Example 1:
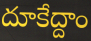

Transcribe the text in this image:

దూకేద్దాం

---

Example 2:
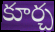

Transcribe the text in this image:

కూర్చ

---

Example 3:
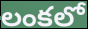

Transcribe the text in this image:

లంకలో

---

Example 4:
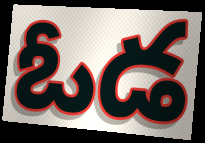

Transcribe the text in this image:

ఓడ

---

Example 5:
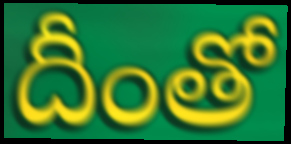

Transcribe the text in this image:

దీంతో